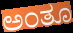
ಅಂತೂ